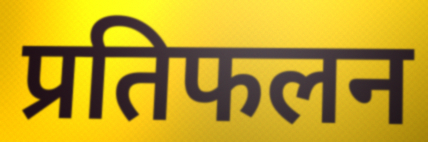
प्रतिफलन